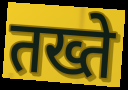
तख्ते